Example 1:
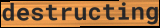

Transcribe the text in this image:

destructing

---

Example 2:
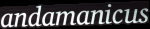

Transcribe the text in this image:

andamanicus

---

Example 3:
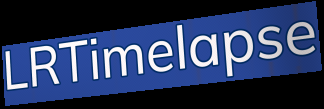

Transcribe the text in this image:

LRTimelapse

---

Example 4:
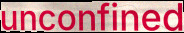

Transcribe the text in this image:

unconfined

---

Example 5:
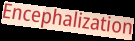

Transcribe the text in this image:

Encephalization